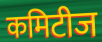
कमिटीज